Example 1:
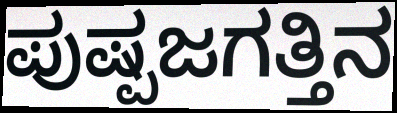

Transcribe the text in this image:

ಪುಷ್ಪಜಗತ್ತಿನ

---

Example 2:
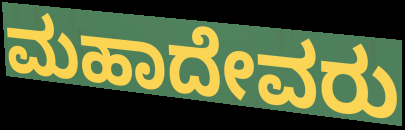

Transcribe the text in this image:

ಮಹಾದೇವರು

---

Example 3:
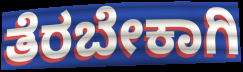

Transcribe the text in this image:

ತೆರಬೇಕಾಗಿ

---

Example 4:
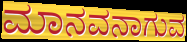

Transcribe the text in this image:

ಮಾನವನಾಗುವ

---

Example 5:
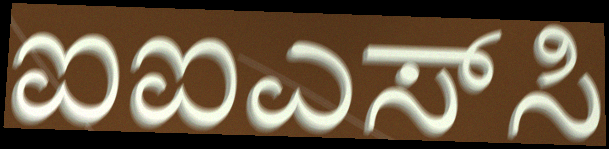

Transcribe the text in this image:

ಐಐಎಸ್‌ಸಿ